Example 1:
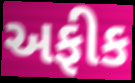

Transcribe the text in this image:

અફીક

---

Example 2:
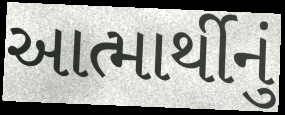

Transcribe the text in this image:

આત્માર્થીનું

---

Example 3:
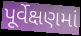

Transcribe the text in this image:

પૂર્વેક્ષણમાં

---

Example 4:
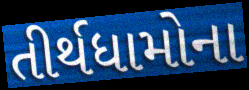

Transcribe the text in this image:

તીર્થધામોના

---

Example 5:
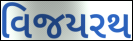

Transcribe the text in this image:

વિજયરથ